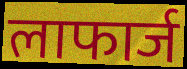
लाफार्ज